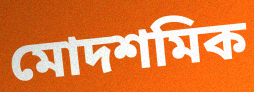
মোদশমিক